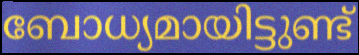
ബോധ്യമായിട്ടുണ്ട്